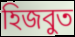
হিজবুত